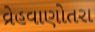
વ્રેહવાણોતરા